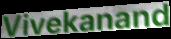
Vivekanand